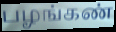
பழங்கண்